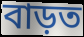
বাড়ত